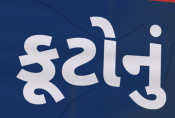
કૂટોનું